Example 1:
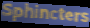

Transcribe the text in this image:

Sphincters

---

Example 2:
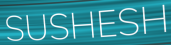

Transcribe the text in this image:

SUSHESH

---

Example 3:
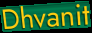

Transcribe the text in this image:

Dhvanit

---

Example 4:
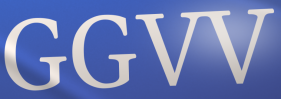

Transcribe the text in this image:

GGVV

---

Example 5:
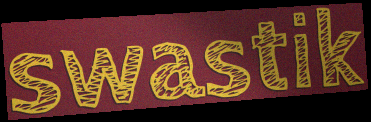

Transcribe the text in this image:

swastik